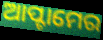
ଆପ୍ଟାମେର